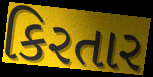
કિરતાર